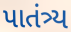
પાતંત્ર્ય